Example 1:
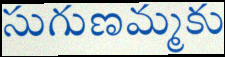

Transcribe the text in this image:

సుగుణమ్మకు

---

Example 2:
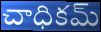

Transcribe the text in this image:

చాధికమ్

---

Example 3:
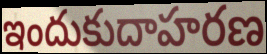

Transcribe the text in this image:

ఇందుకుదాహరణ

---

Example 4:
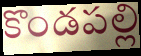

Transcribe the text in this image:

కొండపల్లి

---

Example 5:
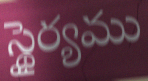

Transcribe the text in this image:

స్థైర్యము